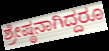
ಶ್ರೇಷ್ಠನಾಗಿದ್ದರೂ